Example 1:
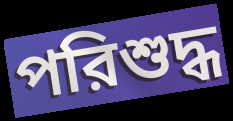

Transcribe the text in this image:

পরিশুদ্ধ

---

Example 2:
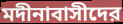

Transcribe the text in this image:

মদীনাবাসীদের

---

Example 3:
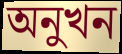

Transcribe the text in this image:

অনুখন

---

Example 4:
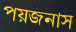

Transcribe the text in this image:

পয়জনাস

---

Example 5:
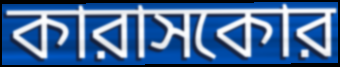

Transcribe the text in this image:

কারাসকোর